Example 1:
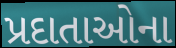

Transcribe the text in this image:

પ્રદાતાઓના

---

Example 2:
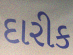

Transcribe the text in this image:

દારીક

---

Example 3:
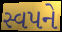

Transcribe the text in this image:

સ્વપને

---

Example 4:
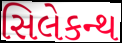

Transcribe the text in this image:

સિલેકન્થ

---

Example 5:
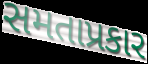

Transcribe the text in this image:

સમતાપ્રકાર